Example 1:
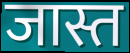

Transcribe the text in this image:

जास्त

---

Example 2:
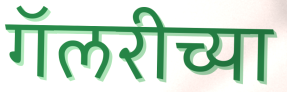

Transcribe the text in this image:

गॅलरीच्या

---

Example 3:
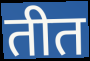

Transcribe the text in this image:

तीत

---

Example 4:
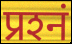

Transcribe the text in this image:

प्रश्‍नं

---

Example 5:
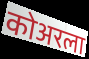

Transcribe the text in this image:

कोअरला